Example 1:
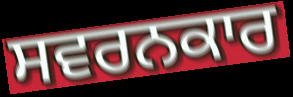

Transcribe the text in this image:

ਸਵਰਨਕਾਰ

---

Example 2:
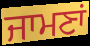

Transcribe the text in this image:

ਜਾਮਣਾਂ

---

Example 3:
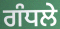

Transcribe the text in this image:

ਗੰਧਲੇ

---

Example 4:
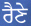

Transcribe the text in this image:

ਰੈਣੇ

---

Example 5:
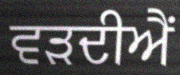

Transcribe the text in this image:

ਵੜਦੀਐਂ